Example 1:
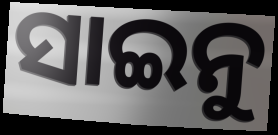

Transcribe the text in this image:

ସାଇନୁ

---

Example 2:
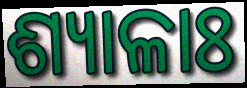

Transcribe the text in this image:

ଶ୍ୟାଳାଃ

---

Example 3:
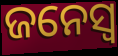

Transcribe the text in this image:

ଜନେସ୍ୱ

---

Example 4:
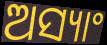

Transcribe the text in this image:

ଅସ୍ୟାଂ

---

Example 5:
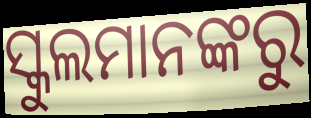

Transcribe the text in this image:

ସ୍କୁଲମାନଙ୍କରୁ